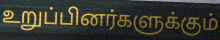
உறுப்பினர்களுக்கும்